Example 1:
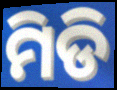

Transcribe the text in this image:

ମିଡି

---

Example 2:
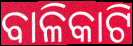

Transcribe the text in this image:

ବାଳିକାଟି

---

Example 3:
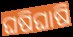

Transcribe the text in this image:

ଘଷିଘାଷି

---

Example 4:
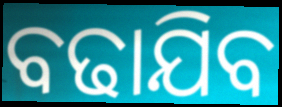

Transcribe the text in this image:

ବଢାଯିବ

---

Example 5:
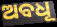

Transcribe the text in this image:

ଅବଧୂ